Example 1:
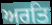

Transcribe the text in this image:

ਅਰਤਿ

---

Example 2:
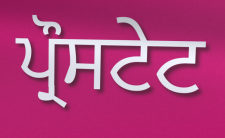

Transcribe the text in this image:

ਪ੍ਰੌਸਟੇਟ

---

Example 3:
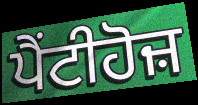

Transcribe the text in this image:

ਪੈਂਟੀਹੋਜ਼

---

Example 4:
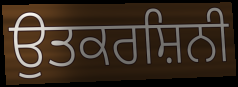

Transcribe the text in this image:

ਉਤਕਰਸ਼ਿਨੀ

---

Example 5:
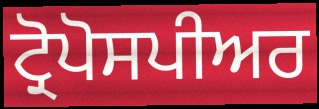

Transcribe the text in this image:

ਟ੍ਰੋਪੋਸਪੀਅਰ